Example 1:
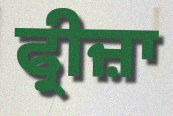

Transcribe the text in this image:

ਫ੍ਰੀਜ਼ਾ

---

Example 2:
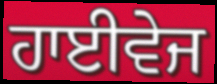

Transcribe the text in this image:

ਹਾਈਵੇਜ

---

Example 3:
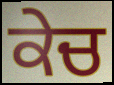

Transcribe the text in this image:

ਕੇਚ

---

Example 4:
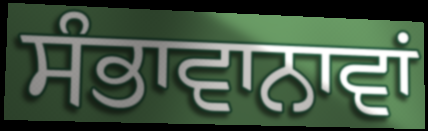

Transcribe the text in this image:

ਸੰਭਾਵਾਨਾਵਾਂ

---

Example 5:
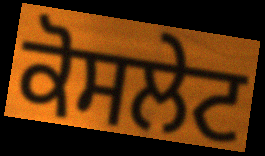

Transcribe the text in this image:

ਕੋਸਲੇਟ